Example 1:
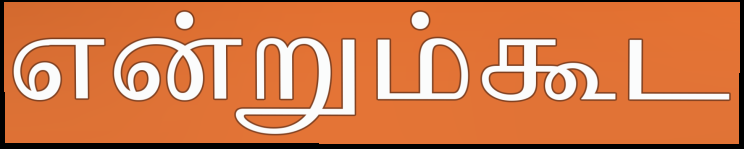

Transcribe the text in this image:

என்றும்கூட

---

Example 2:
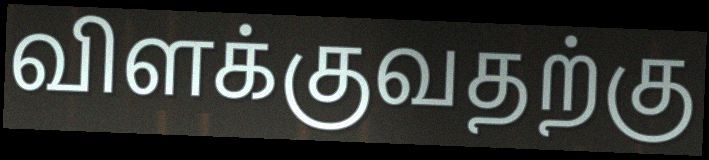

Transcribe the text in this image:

விளக்குவதற்கு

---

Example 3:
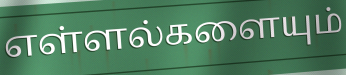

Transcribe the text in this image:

எள்ளல்களையும்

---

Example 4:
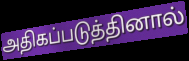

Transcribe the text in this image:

அதிகப்படுத்தினால்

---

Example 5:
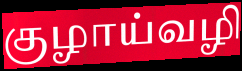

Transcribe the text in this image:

குழாய்வழி